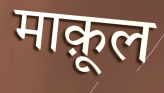
माक़ूल